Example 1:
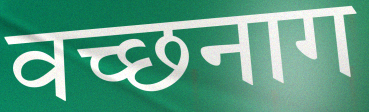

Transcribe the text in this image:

वच्छनाग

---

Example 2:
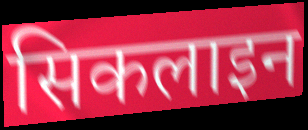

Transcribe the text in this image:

सिकलाइन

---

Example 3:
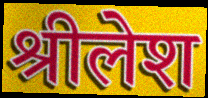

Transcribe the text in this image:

श्रीलेश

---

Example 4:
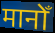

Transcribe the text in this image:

मानोँ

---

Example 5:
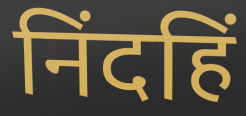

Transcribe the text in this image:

निंदहिं